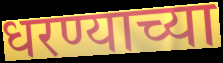
धरण्याच्या